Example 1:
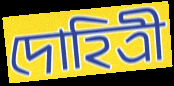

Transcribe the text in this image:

দোহিত্রী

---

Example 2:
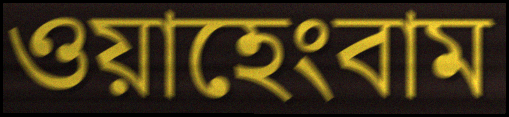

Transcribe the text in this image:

ওয়াহেংবাম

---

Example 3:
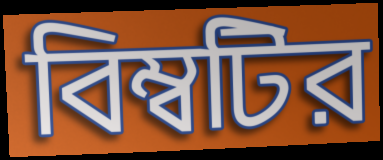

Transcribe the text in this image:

বিম্বটির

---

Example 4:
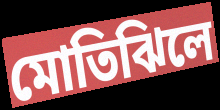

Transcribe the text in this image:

মোতিঝিলে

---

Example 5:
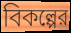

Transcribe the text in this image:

বিকল্পের